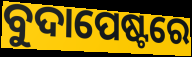
ବୁଦାପେଷ୍ଟରେ